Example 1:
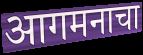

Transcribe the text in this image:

आगमनाचा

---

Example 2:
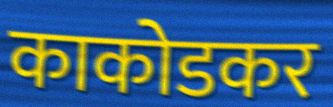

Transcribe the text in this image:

काकोडकर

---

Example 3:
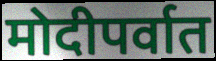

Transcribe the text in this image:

मोदीपर्वात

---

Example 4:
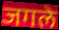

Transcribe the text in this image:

जगले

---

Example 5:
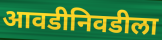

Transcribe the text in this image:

आवडीनिवडीला